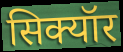
सिक्यॉर